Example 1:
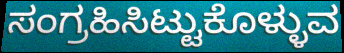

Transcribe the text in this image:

ಸಂಗ್ರಹಿಸಿಟ್ಟುಕೊಳ್ಳುವ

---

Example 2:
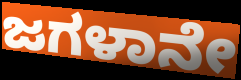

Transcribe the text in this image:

ಜಗಳಾನೇ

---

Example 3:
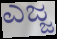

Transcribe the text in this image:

ಎಜ್ಜ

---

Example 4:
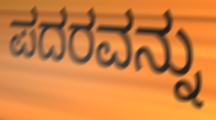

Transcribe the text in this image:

ಪದರವನ್ನು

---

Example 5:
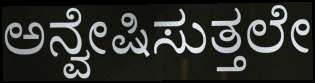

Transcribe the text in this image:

ಅನ್ವೇಷಿಸುತ್ತಲೇ